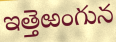
ఇత్తెఱంగున